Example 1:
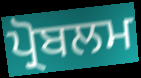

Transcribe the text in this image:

ਪ੍ਰੋਬਲਮ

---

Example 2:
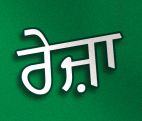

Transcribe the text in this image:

ਰੇਜ਼ਾ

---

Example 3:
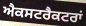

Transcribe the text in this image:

ਐਕਸਟਰੈਕਟਰਾਂ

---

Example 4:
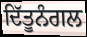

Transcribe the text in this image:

ਦਿੱਤੂਨੰਗਲ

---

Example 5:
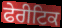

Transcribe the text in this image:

ਫੇਰੀਟਿਕ